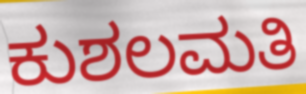
ಕುಶಲಮತಿ